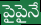
పైపైనే